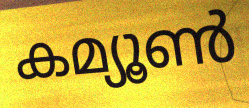
കമ്യൂൺ